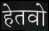
हेतवो